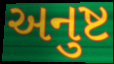
અનુષ્ટ